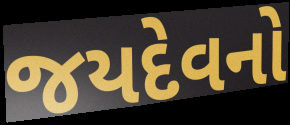
જયદેવનો